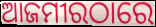
ଆଜମୀରଠାରେ